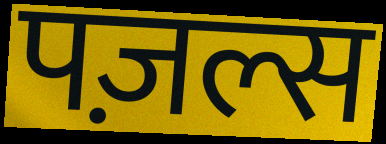
पज़ल्स